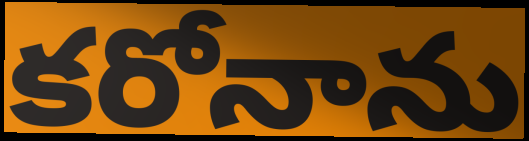
కరోనాను